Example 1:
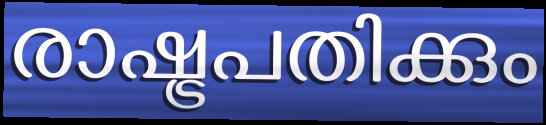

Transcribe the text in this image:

രാഷ്ട്രപതിക്കും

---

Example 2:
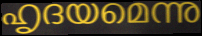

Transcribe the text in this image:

ഹൃദയമെന്നു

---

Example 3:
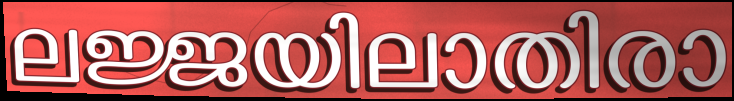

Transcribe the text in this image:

ലജ്ജയിലാതിരാ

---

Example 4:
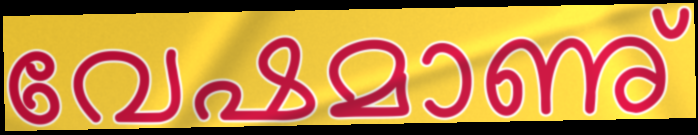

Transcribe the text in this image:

വേഷമാണു്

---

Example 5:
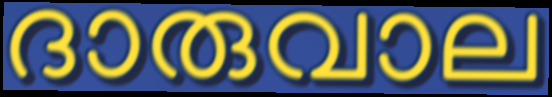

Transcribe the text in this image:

ദാരുവാല